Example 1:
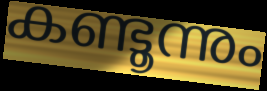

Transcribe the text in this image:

കണ്ടൂന്നും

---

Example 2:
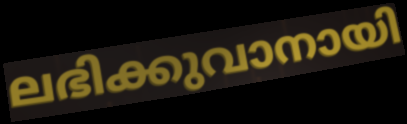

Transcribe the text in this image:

ലഭിക്കുവാനായി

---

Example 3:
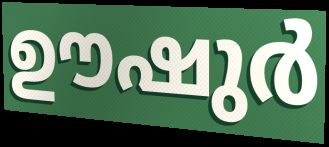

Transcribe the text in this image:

ഊഷുർ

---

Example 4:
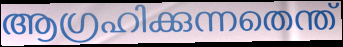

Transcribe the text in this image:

ആഗ്രഹിക്കുന്നതെന്ത്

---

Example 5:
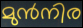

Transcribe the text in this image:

മുൻനിര